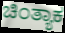
ಚಿಂತ್ಯಾಕ